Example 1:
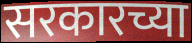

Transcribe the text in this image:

सरकारच्या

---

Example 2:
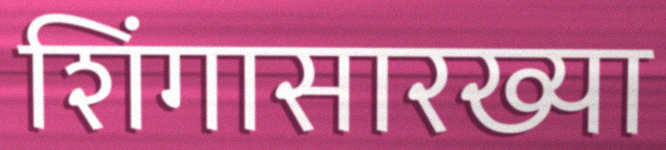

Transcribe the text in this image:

शिंगासारख्या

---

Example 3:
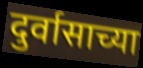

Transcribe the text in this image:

दुर्वासाच्या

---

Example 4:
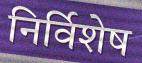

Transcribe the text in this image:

निर्विशेष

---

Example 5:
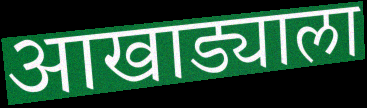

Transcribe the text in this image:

आखाड्याला